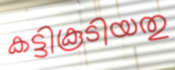
കട്ടികൂടിയതു